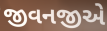
જીવનજીએ